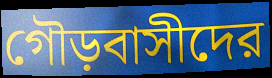
গৌড়বাসীদের